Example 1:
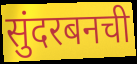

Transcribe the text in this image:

सुंदरबनची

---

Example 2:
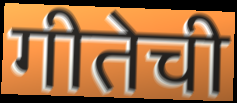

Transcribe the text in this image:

गीतेची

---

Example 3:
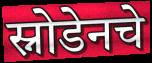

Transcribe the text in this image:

स्नोडेनचे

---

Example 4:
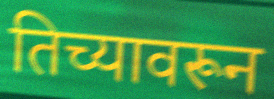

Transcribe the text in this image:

तिच्यावरून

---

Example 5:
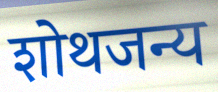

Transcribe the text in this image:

शोथजन्य